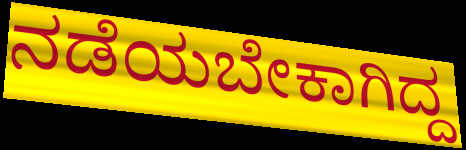
ನಡೆಯಬೇಕಾಗಿದ್ದ